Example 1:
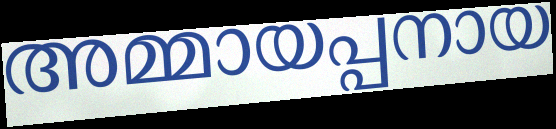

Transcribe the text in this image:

അമ്മായപ്പനായ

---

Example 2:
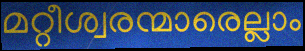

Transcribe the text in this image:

മറ്റീശ്വരന്മാരെല്ലാം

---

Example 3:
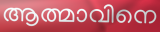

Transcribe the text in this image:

ആത്മാവിനെ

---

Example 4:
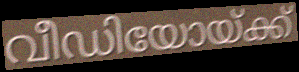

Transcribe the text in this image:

വീഡിയോയ്ക്ക്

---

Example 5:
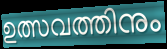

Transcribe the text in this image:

ഉത്സവത്തിനും